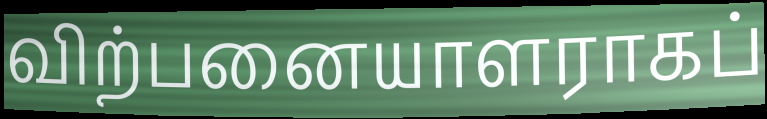
விற்பனையாளராகப்